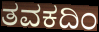
ತವಕದಿಂ